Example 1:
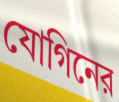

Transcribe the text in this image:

যোগিনের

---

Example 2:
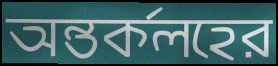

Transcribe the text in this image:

অন্তর্কলহের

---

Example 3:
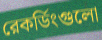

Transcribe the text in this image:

রেকর্ডিংগুলো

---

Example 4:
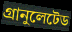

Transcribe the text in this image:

গ্রানুলেটেড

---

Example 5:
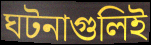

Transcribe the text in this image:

ঘটনাগুলিই